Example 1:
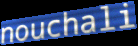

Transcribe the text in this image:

nouchali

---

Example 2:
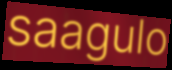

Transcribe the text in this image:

saagulo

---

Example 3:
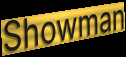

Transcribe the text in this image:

Showman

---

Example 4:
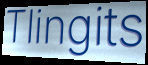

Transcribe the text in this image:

Tlingits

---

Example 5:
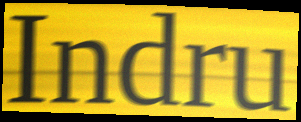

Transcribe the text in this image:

Indru